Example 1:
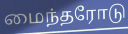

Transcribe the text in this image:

மைந்தரோடு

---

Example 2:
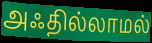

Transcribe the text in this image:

அஃதில்லாமல்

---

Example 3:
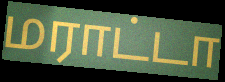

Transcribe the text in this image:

மராட்டா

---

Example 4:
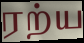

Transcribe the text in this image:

ரற்ய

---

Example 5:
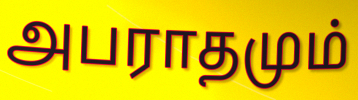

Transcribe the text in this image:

அபராதமும்